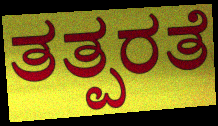
ತತ್ಪರತೆ